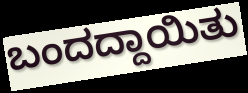
ಬಂದದ್ದಾಯಿತು